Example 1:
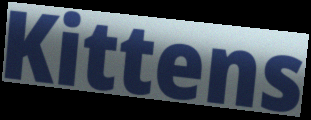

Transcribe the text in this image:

Kittens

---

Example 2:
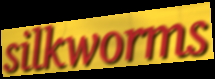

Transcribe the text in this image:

silkworms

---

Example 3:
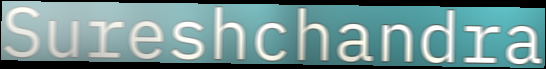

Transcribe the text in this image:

Sureshchandra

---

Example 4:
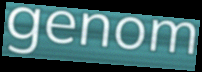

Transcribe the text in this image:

genom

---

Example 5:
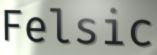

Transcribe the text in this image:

Felsic